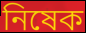
নিষেক